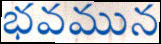
భవమున